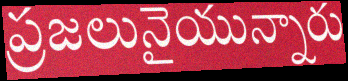
ప్రజలునైయున్నారు